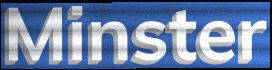
Minster